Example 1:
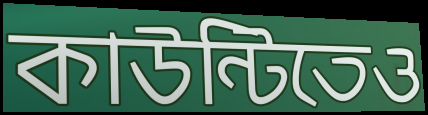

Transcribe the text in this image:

কাউন্টিতেও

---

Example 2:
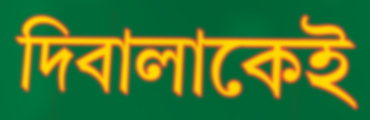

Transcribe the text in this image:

দিবালাকেই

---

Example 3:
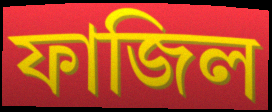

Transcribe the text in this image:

ফাজিল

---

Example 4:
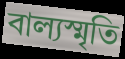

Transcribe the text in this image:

বাল্যস্মৃতি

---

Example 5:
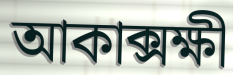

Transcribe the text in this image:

আকাক্সক্ষী